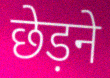
छेड़ने